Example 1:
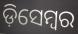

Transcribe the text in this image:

ଡ଼ିସେମ୍ୱର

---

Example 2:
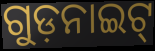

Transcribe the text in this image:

ଗୁଡ଼ନାଇଟ୍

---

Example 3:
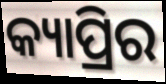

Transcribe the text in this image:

କ୍ୟାପ୍ରିର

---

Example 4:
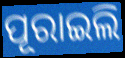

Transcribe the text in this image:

ପୂରାଇଲି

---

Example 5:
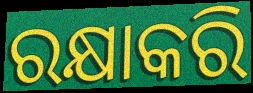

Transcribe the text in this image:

ରକ୍ଷାକରି